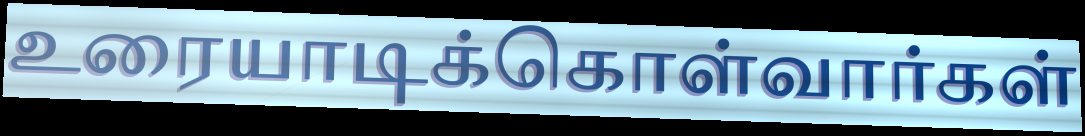
உரையாடிக்கொள்வார்கள்